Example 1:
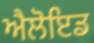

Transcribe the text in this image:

ਐਲੋਇਡ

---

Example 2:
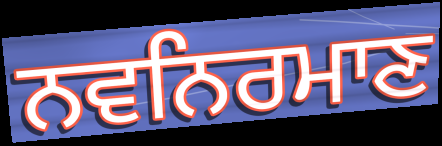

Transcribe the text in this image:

ਨਵਨਿਰਮਾਣ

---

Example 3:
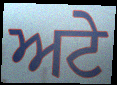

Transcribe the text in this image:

ਅਟੇ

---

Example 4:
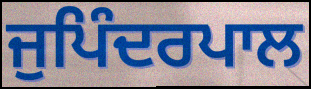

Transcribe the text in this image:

ਜੁਪਿੰਦਰਪਾਲ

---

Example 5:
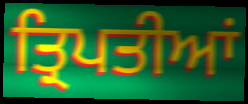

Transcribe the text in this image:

ਤ੍ਰਿਪਤੀਆਂ